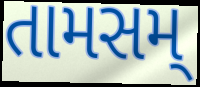
તામસમ્